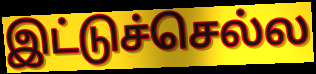
இட்டுச்செல்ல